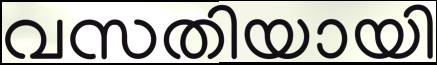
വസതിയായി